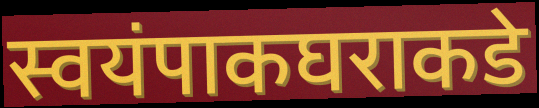
स्वयंपाकघराकडे